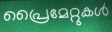
പ്രൈമേറ്റുകൾ